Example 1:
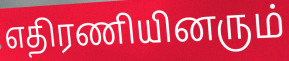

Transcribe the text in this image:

எதிரணியினரும்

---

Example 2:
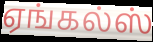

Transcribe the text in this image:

ஏங்கல்ஸ்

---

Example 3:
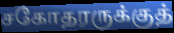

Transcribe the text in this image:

சகோதரருக்குத்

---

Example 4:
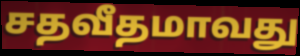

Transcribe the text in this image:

சதவீதமாவது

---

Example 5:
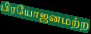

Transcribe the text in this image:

பிரயோஜனமற்ற